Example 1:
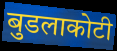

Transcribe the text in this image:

बुडलाकोटी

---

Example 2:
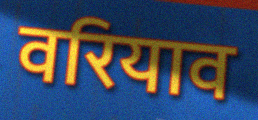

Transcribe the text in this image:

वरियाव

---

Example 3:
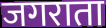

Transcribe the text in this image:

जगराता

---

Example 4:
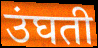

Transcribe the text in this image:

उंघती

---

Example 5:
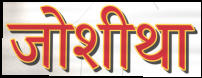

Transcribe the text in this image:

जोशीथा